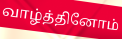
வாழ்த்தினோம்